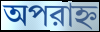
অপরাহ্ন